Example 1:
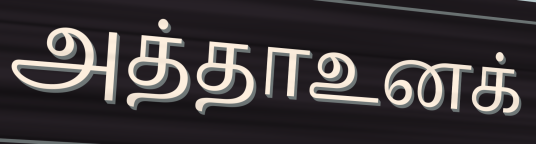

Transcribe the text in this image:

அத்தாஉனக்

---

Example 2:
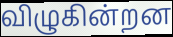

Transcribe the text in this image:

விழுகின்றன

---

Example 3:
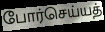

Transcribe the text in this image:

போர்செய்யத்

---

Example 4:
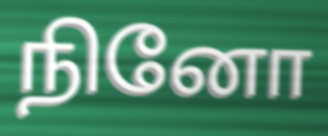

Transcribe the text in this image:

நினோ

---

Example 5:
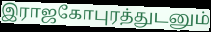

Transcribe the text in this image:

இராஜகோபுரத்துடனும்